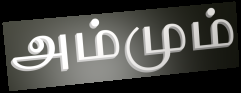
அம்மும்